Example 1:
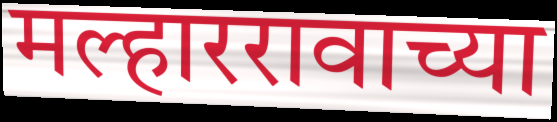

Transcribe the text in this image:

मल्हाररावाच्या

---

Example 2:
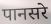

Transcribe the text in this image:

पानसरे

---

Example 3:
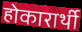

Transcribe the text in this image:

होकारार्थी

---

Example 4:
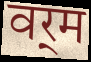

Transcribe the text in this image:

वर्म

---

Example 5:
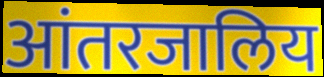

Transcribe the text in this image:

आंतरजालिय